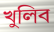
খুলিব